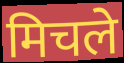
मिचले